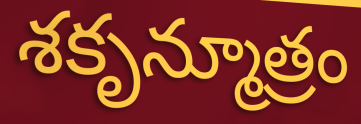
శకృన్మూత్రం